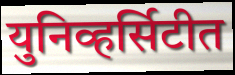
युनिव्हर्सिटीत